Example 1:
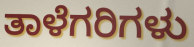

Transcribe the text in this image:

ತಾಳೆಗರಿಗಳು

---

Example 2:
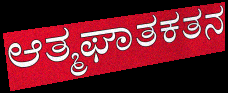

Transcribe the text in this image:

ಆತ್ಮಘಾತಕತನ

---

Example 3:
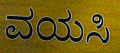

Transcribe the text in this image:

ವಯಸಿ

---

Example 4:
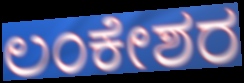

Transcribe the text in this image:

ಲಂಕೇಶರ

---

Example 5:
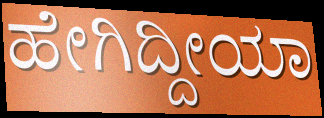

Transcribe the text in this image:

ಹೇಗಿದ್ದೀಯಾ